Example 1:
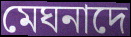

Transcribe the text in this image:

মেঘনাদে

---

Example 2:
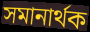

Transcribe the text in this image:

সমানার্থক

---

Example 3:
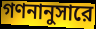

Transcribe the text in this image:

গণনানুসারে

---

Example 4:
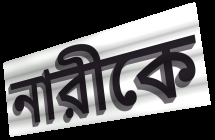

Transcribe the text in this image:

নারীকে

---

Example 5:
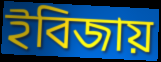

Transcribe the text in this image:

ইবিজায়